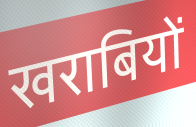
खराबियों